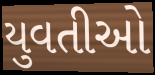
યુવતીઓ